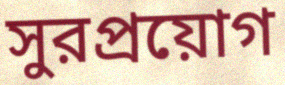
সুরপ্রয়োগ